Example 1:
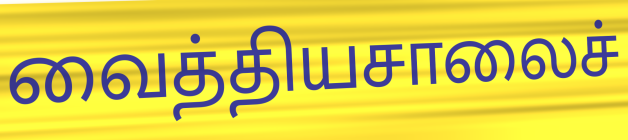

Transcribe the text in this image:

வைத்தியசாலைச்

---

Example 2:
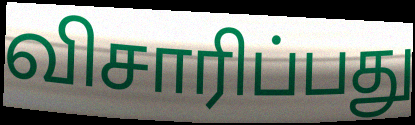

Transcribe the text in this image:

விசாரிப்பது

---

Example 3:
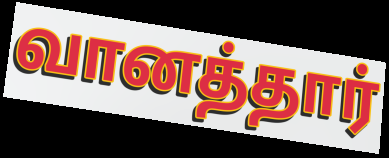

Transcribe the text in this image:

வானத்தார்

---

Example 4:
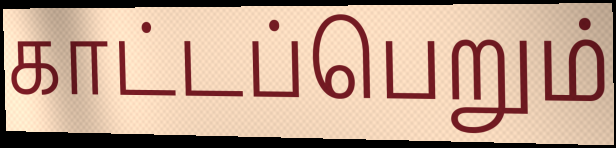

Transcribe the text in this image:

காட்டப்பெறும்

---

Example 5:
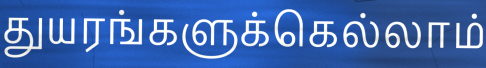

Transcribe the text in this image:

துயரங்களுக்கெல்லாம்